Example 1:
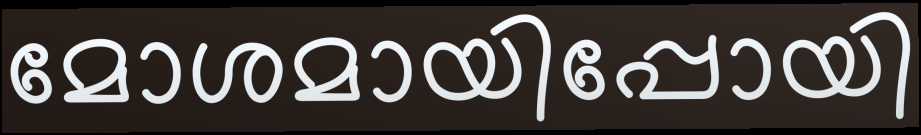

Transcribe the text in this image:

മോശമായിപ്പോയി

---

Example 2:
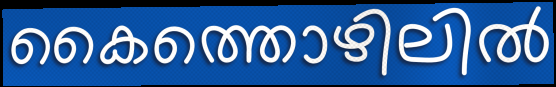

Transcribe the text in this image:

കൈത്തൊഴിലിൽ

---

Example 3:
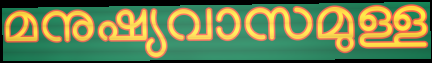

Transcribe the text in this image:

മനുഷ്യവാസമുള്ള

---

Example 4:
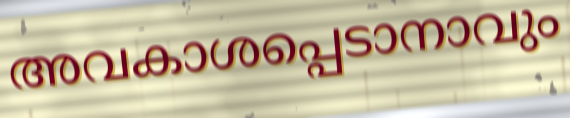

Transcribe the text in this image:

അവകാശപ്പെടാനാവും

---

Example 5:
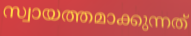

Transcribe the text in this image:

സ്വായത്തമാക്കുന്നത്